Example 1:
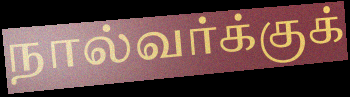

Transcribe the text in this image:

நால்வர்க்குக்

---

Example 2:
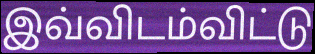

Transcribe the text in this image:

இவ்விடம்விட்டு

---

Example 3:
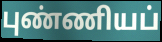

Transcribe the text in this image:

புண்ணியப்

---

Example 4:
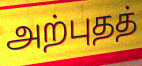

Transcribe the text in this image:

அற்புதத்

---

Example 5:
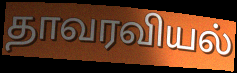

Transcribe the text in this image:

தாவரவியல்